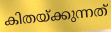
കിതയ്ക്കുന്നത്